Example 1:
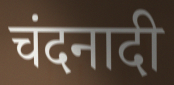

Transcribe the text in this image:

चंदनादी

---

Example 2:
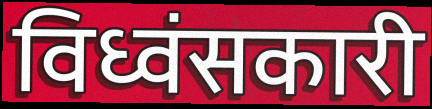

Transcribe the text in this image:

विध्वंसकारी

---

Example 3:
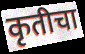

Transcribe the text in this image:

कृतीचा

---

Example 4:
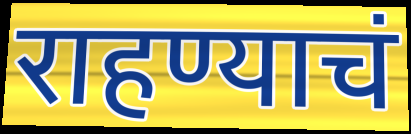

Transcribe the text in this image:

राहण्याचं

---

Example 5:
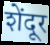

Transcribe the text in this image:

शेंदूर